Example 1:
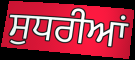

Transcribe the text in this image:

ਸੁਧਰੀਆਂ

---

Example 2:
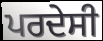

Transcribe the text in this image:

ਪਰਦੇਸੀ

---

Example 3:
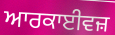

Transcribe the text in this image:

ਆਰਕਾਈਵਜ਼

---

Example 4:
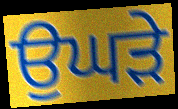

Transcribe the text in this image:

ਉਘੜੇ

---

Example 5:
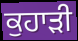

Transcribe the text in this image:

ਕੁਹਾੜੀ